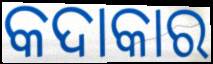
କଦାକାର